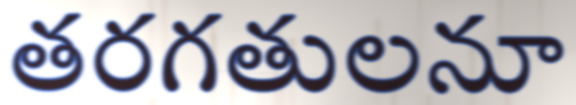
తరగతులనూ